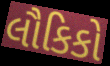
લૌકિકો